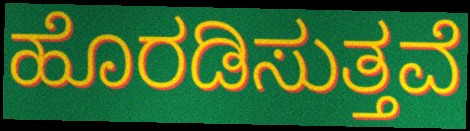
ಹೊರಡಿಸುತ್ತವೆ